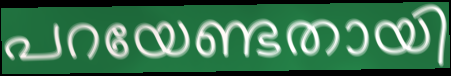
പറയേണ്ടതായി